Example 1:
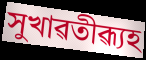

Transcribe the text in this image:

সুখাৱতীৱ্যূহ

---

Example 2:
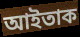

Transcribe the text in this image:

আইতাক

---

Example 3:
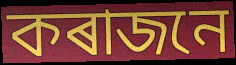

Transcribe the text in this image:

কৰাজনে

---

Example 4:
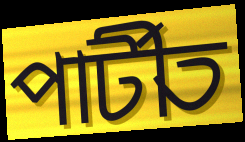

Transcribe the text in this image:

পাৰ্টীত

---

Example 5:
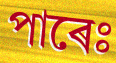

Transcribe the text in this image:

পাৰেঃ